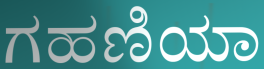
ಗಹಣಿಯಾ